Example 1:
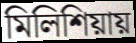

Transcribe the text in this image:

মিলিশিয়ায়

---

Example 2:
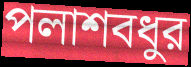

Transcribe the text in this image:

পলাশবধুর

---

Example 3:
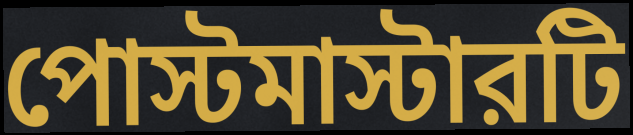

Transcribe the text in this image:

পোস্টমাস্টারটি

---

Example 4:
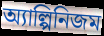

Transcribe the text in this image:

অ্যাল্পিনিজম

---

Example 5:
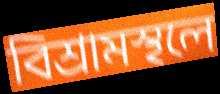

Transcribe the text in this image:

বিশ্রামস্থলে